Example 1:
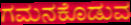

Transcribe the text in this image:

ಗಮನಕೊಡುವ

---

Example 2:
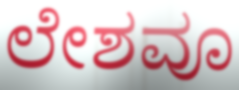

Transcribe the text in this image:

ಲೇಶವೂ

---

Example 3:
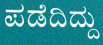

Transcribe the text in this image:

ಪಡೆದಿದ್ದು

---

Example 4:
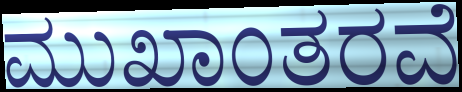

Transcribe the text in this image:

ಮುಖಾಂತರವೆ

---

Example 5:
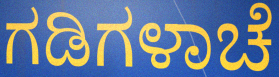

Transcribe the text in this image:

ಗಡಿಗಳಾಚೆ